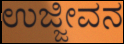
ಉಜ್ಜೀವನ